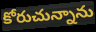
కోరుచున్నాను